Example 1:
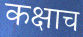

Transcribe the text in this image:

कक्षाच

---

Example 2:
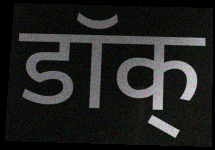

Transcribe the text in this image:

डॉक्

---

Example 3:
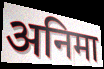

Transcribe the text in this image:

अनिमा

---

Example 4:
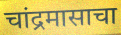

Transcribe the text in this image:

चांद्रमासाचा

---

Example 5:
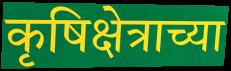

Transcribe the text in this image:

कृषिक्षेत्राच्या